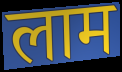
लाम